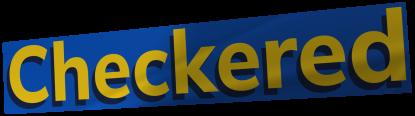
Checkered